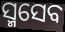
ସ୍ମସେବ